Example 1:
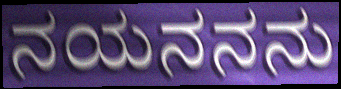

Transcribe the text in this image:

ನಯನನನು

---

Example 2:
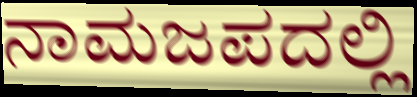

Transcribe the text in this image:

ನಾಮಜಪದಲ್ಲಿ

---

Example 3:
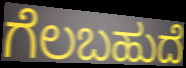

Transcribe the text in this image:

ಗೆಲಬಹುದೆ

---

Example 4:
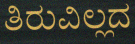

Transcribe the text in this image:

ತಿರುವಿಲ್ಲದ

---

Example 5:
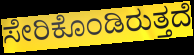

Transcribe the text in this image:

ಸೇರಿಕೊಂಡಿರುತ್ತದೆ